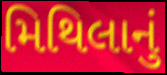
મિથિલાનું